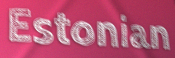
Estonian